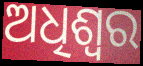
ଅଧିଶ୍ବର